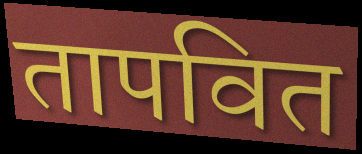
तापवित